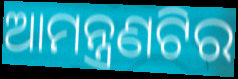
ଆମନ୍ତ୍ରଣଟିର